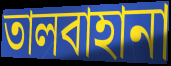
তালবাহানা